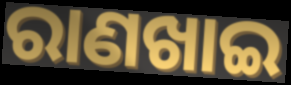
ରାଣଖାଇ